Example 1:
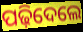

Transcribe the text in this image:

ପଢ଼ିଦେଲେ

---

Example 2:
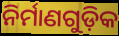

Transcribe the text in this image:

ନିର୍ମାଣଗୁଡ଼ିକ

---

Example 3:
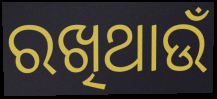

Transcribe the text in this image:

ରଖିଥାଉଁ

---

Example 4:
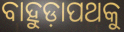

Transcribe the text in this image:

ବାହୁଡ଼ାପଥକୁ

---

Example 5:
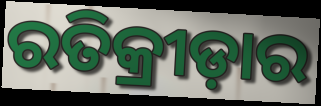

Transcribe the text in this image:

ରତିକ୍ରୀଡ଼ାର